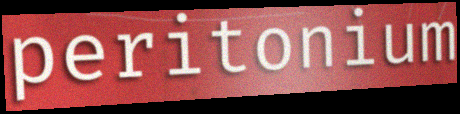
peritonium